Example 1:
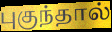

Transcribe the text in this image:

புகுந்தால்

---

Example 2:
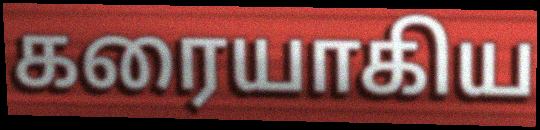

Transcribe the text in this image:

கரையாகிய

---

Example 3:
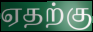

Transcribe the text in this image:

ஏதற்கு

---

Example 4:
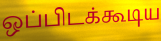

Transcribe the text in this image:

ஒப்பிடக்கூடிய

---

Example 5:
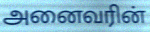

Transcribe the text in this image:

அனைவரின்